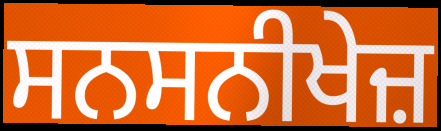
ਸਨਸਨੀਖੇਜ਼